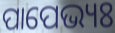
ପାପେଭ୍ୟଃ